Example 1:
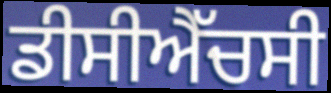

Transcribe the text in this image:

ਡੀਸੀਐੱਚਸੀ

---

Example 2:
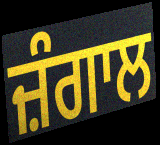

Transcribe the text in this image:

ਜ਼ੰਗਾਲ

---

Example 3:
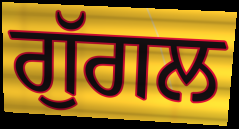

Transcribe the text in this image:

ਗੁੱਗਲ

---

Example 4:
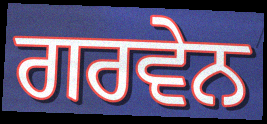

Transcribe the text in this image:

ਗਰਵੇਨ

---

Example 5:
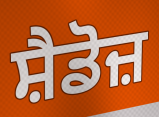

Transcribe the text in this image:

ਸ਼ੈਡੋਜ਼